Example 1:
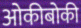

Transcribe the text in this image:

ओकीबोकी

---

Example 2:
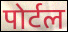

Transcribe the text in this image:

पोर्टल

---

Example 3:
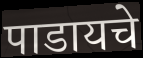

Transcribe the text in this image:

पाडायचे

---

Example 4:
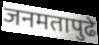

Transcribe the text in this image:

जनमतापुढे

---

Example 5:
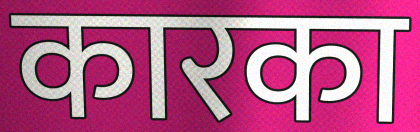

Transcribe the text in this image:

कारका